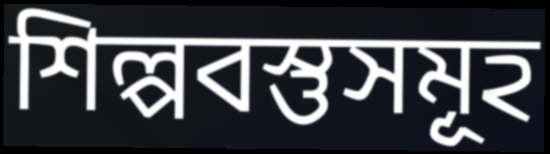
শিল্পবস্তুসমূহ